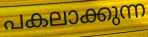
പകലാക്കുന്ന